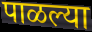
पाळल्या